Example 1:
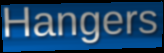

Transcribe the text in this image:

Hangers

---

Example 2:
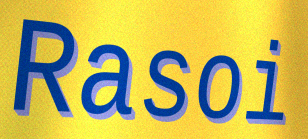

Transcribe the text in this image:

Rasoi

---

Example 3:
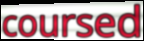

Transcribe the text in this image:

coursed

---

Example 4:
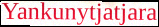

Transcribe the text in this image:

Yankunytjatjara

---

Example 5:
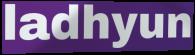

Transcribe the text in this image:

ladhyun